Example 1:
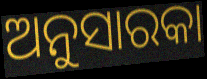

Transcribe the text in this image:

ଅନୁସାରକା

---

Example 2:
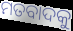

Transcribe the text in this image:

ମତବାଦକୁ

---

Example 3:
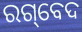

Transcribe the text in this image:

ରଗ୍‌ବେଦ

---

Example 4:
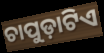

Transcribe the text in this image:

ଚାପୁଡ଼ାଟିଏ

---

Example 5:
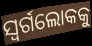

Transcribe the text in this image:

ସ୍ବର୍ଗଲୋକକୁ